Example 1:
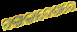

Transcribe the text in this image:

ବଙ୍ଗଳାଦେଶରେ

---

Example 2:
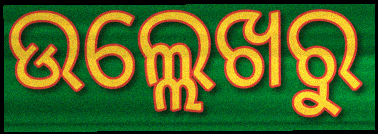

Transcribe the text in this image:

ଉଲ୍ଲେଖରୁ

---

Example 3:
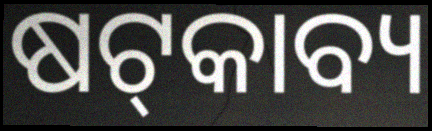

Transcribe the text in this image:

ଷଟ୍‌କାବ୍ୟ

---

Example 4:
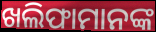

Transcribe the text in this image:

ଖଲିଫାମାନଙ୍କ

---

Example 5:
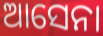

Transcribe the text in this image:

ଆସେନା